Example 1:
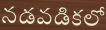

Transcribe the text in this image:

నడవడికలో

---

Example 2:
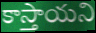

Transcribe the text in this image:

కాస్తాయని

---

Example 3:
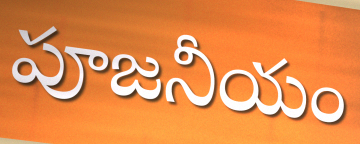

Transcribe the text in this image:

పూజనీయం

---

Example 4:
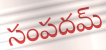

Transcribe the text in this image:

సంపదమ్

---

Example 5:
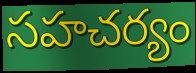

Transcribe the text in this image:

సహచర్యం